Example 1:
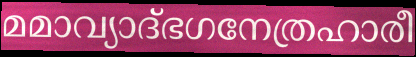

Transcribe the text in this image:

മമാവ്യാദ്ഭഗനേത്രഹാരീ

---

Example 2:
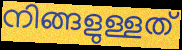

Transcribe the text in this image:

നിങ്ങളുള്ളത്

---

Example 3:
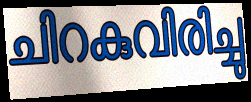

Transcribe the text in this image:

ചിറകുവിരിച്ചു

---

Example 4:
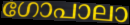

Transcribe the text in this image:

ഗോപാലാ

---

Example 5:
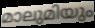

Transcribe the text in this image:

മാലുമിയും